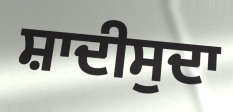
ਸ਼ਾਦੀਸੁਦਾ